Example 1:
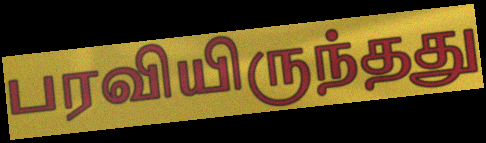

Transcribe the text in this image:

பரவியிருந்தது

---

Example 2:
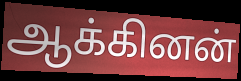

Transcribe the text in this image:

ஆக்கினன்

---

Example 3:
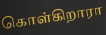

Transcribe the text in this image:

கொள்கிறாரா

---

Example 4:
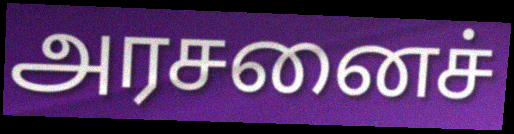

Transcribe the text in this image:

அரசனைச்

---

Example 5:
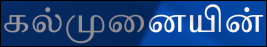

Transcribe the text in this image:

கல்முனையின்